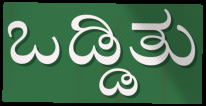
ಒಡ್ಡಿತು